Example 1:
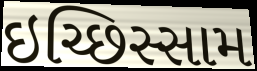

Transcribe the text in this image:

ઇચ્છિસ્સામ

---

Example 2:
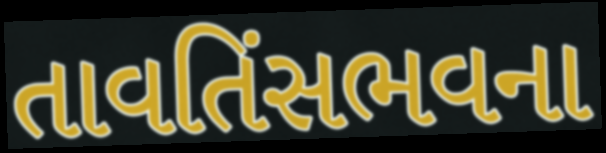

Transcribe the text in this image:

તાવતિંસભવના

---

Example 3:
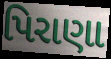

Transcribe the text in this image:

પિરાણા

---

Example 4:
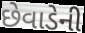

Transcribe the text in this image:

છેવાડેની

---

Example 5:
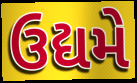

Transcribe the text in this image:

ઉદ્યમે